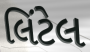
લિંટેલ